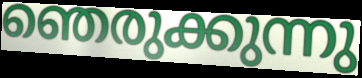
ഞെരുക്കുന്നു